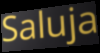
Saluja